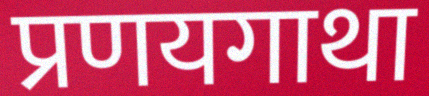
प्रणयगाथा